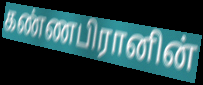
கண்ணபிரானின்